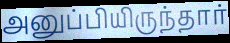
அனுப்பியிருந்தார்